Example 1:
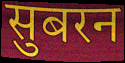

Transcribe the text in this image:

सुबरन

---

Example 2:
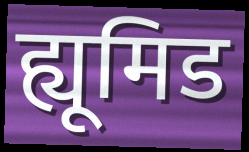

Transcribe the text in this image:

ह्यूमिड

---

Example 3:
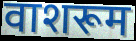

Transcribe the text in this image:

वाशरूम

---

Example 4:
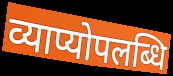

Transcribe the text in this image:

व्याप्योपलब्धि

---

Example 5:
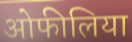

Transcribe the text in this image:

ओफीलिया